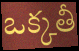
ఒక్కతీ